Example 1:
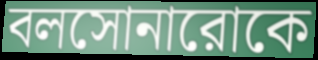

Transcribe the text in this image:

বলসোনারোকে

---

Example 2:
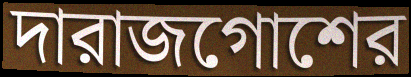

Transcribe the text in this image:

দারাজগোশের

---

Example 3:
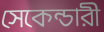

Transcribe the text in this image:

সেকেন্ডারী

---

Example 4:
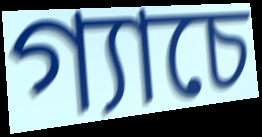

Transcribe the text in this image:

গ্যাচে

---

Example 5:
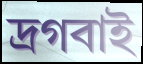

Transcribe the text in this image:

দ্রগবাই